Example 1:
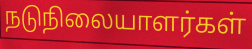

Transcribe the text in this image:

நடுநிலையாளர்கள்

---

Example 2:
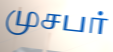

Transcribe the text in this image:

முசபர்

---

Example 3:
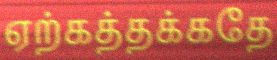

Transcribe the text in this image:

ஏற்கத்தக்கதே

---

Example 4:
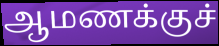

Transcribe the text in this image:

ஆமணக்குச்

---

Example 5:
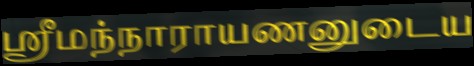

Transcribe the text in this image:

ஸ்ரீமந்நாராயணனுடைய